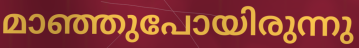
മാഞ്ഞുപോയിരുന്നു